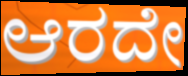
ಆರದೇ